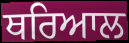
ਥਰਿਆਲ